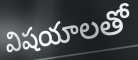
విషయాలతో